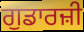
ਗੁਡਾਰਜ਼ੀ